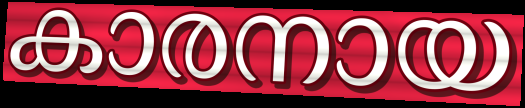
കാരനായ